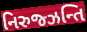
નિરુજ્ઝન્તિ